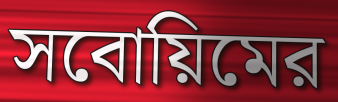
সবোয়িমের